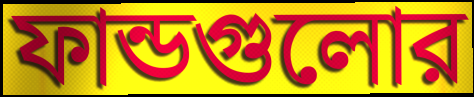
ফান্ডগুলোর